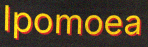
Ipomoea